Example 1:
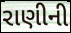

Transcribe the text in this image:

રાણીની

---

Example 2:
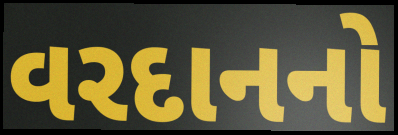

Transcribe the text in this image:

વરદાનનો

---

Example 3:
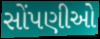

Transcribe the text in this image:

સોંપણીઓ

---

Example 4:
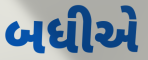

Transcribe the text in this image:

બધીએ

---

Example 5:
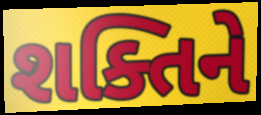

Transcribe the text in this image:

શક્તિને